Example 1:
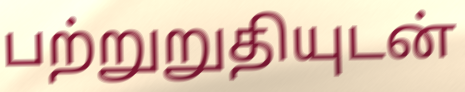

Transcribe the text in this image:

பற்றுறுதியுடன்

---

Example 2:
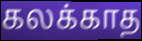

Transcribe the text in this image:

கலக்காத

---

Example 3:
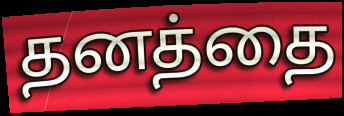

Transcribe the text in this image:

தனத்தை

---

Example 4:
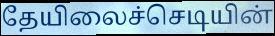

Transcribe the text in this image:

தேயிலைச்செடியின்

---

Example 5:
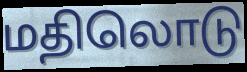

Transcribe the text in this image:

மதிலொடு